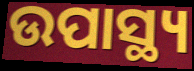
ଉପାସ୍ଥ୍ୟ